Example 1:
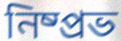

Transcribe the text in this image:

নিষ্প্রভ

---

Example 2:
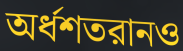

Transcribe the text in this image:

অর্ধশতরানও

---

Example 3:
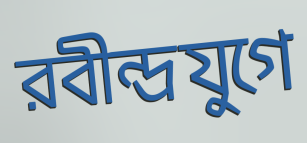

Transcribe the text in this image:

রবীন্দ্রযুগে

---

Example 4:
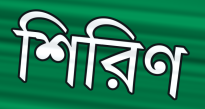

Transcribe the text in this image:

শিরিণ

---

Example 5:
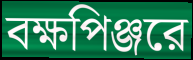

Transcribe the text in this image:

বক্ষপিঞ্জরে